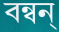
বন্বন্